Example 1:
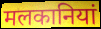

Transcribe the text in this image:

मलकानियां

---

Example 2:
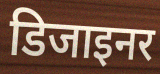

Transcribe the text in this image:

डिजाइनर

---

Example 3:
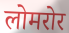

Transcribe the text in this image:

लोमरोर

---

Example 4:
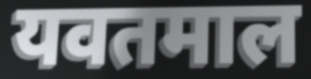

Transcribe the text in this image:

यवतमाल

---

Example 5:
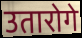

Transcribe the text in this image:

उतारोगे